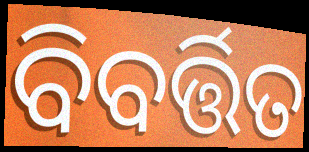
ବିବର୍ତ୍ତିତ